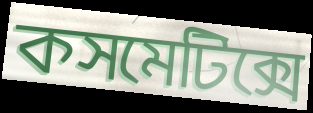
কসমেটিক্সে